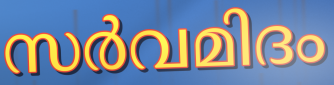
സർവമിദം